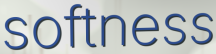
softness